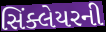
સિંક્લેયરની